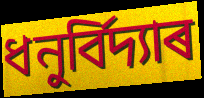
ধনুৰ্বিদ্যাৰ